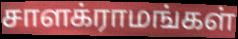
சாளக்ராமங்கள்